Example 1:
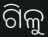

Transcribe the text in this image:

ଗିଳୁ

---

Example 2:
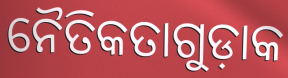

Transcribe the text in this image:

ନୈତିକତାଗୁଡ଼ାକ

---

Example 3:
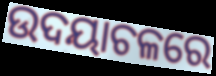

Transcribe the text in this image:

ଉଦୟାଚଳରେ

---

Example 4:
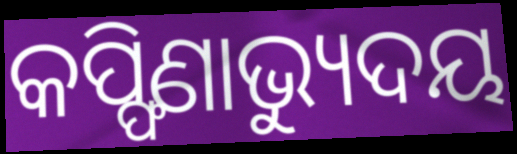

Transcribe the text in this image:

କପ୍ଫିଣାଭ୍ୟୁଦୟ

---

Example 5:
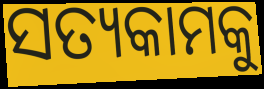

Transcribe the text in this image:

ସତ୍ୟକାମକୁ